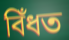
বিঁধত